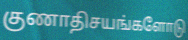
குணாதிசயங்களோடு